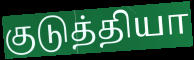
குடுத்தியா